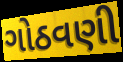
ગોઠવણી